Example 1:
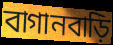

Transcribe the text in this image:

বাগানবাড়ি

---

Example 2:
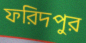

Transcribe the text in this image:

ফরিদপুর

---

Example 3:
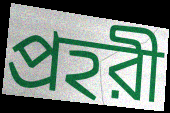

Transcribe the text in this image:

প্রহরী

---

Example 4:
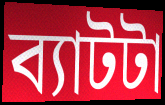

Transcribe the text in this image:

ব্যাটটা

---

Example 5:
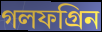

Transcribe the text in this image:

গলফগ্রিন